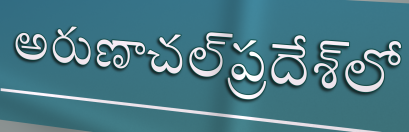
అరుణాచల్‌ప్రదేశ్‌లో